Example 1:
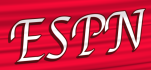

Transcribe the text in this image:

ESPN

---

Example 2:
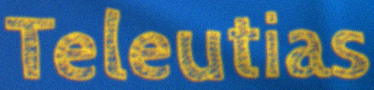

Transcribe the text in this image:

Teleutias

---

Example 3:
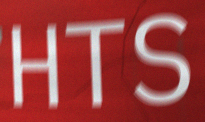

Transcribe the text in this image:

HTS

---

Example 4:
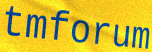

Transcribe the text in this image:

tmforum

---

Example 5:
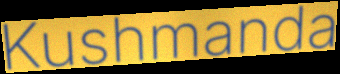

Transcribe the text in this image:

Kushmanda